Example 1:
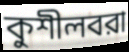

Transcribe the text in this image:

কুশীলবরা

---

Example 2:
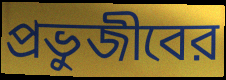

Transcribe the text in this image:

প্রভুজীবের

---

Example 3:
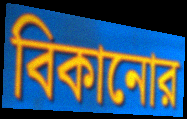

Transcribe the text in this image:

বিকানোর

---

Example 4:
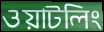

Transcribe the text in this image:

ওয়াটলিং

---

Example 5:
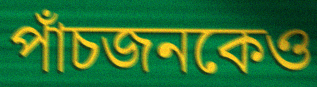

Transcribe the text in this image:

পাঁচজনকেও